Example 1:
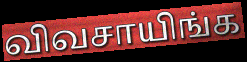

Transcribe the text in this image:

விவசாயிங்க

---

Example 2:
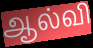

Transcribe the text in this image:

ஆல்வி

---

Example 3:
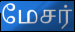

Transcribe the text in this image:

மேசர்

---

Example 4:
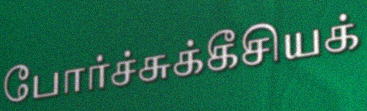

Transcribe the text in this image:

போர்ச்சுக்கீசியக்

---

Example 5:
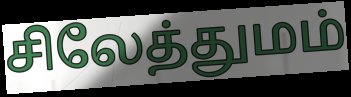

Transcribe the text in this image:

சிலேத்துமம்